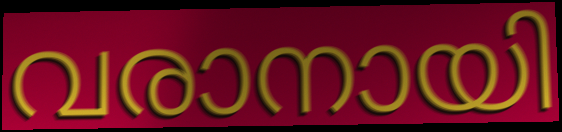
വരാനായി